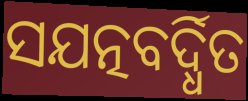
ସଯତ୍ନବର୍ଦ୍ଧିତ